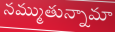
నమ్ముతున్నామా